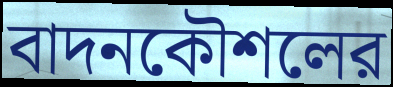
বাদনকৌশলের